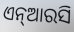
ଏନ୍ଆରସି